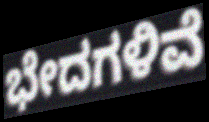
ಭೇದಗಳಿವೆ